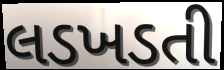
લડખડતી